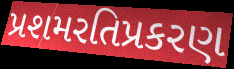
પ્રશમરતિપ્રકરણ